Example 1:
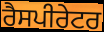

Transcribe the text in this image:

ਰੈਸਪੀਰੇਟਰ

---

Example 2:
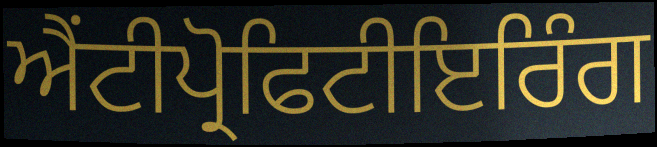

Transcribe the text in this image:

ਐਂਟੀਪ੍ਰੋਫਿਟੀਇਰਿੰਗ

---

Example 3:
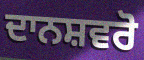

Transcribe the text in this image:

ਦਾਨਸ਼ਵਰੋ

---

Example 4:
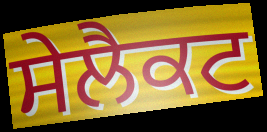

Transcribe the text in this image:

ਸੇਲੈਕਟ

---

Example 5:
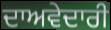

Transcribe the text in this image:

ਦਾਅਵੇਦਾਰੀ